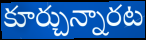
కూర్చున్నారట